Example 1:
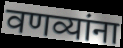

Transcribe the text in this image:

वणव्यांना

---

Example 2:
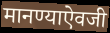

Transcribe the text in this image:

मानण्याऐवजी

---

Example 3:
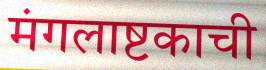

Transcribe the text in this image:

मंगलाष्टकाची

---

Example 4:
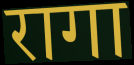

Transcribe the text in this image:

रागा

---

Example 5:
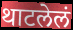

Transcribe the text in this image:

थाटलेलं